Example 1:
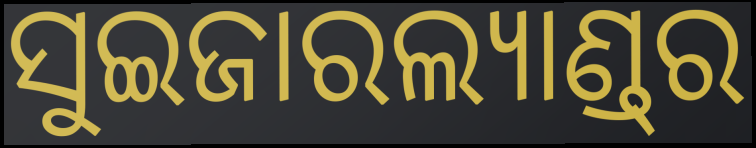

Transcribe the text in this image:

ସୁଇଜାରଲ୍ୟାଣ୍ଡ୍‌ର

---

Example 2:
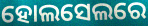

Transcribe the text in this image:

ହୋଲସେଲରେ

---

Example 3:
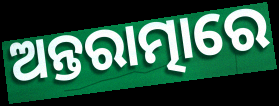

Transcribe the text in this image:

ଅନ୍ତରାତ୍ମାରେ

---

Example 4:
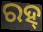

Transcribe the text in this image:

ରହ୍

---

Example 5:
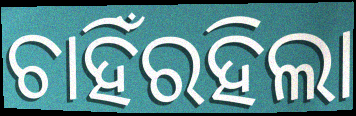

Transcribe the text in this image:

ଚାହିଁରହିଲା